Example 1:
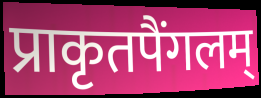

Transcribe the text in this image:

प्राकृतपैंगलम्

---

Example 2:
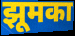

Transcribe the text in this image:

झूमका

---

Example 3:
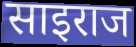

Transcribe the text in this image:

साइराज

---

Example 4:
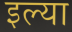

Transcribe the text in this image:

इल्या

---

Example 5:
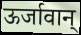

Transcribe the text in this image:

ऊर्जावान्